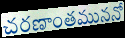
చరణాంతముననో